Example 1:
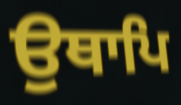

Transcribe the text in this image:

ਉਥਾਪਿ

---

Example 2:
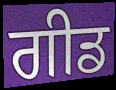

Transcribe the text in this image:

ਗੀਡ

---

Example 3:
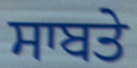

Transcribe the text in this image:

ਸਾਬਤੇ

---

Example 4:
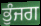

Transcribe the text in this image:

ਭੁੰਜਗ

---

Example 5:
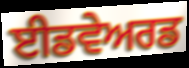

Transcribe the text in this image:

ਈਡਵੇਅਰਡ